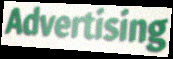
Advertising